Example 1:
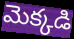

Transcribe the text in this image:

మెక్కడి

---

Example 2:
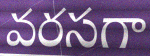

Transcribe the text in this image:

వరసగా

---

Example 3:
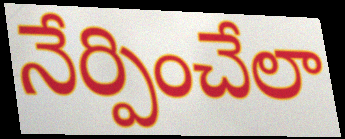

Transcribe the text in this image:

నేర్పించేలా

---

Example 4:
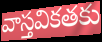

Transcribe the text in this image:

వాస్తవికతకు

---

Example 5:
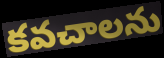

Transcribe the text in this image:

కవచాలను